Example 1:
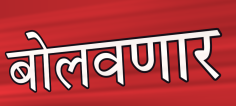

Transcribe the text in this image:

बोलवणार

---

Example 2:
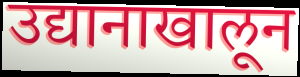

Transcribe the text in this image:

उद्यानाखालून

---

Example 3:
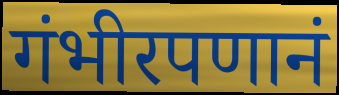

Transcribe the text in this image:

गंभीरपणानं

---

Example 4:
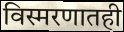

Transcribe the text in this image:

विस्मरणातही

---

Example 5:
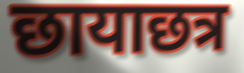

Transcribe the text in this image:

छायाछत्र